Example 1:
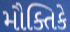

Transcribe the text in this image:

મૌક્તિકે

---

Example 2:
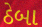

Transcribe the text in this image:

ઠેબા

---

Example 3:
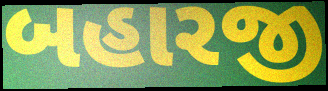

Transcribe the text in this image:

બહારજી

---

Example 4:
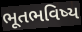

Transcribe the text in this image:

ભૂતભવિષ્ય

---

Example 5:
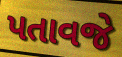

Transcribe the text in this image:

પતાવજે